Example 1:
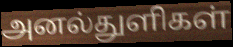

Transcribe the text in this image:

அனல்துளிகள்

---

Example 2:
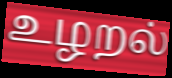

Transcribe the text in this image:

உழறல்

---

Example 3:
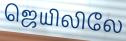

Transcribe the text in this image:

ஜெயிலிலே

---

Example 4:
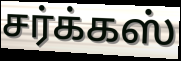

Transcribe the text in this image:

சர்க்கஸ்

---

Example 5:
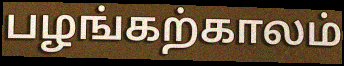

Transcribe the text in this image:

பழங்கற்காலம்